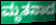
ಮೃತನಾದ